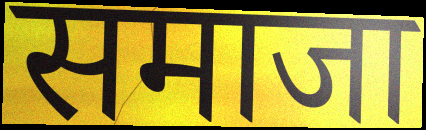
समाजा